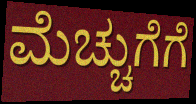
ಮೆಚ್ಚುಗೆಗೆ